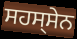
ਸਹਸ੍ਸੇਨ